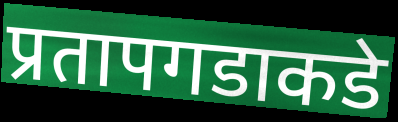
प्रतापगडाकडे